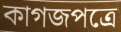
কাগজপত্রে